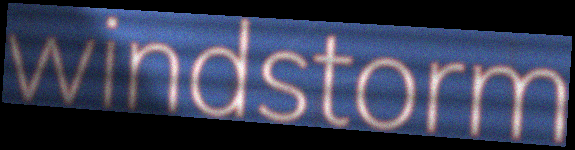
windstorm